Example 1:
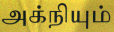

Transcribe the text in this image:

அக்நியும்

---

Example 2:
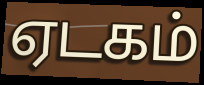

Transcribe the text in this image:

ஏடகம்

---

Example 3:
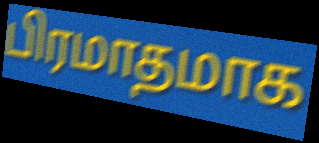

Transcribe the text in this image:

பிரமாதமாக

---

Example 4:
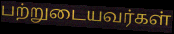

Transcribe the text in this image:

பற்றுடையவர்கள்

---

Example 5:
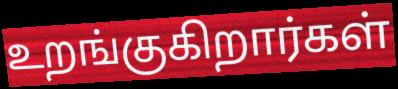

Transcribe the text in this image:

உறங்குகிறார்கள்